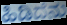
ಹಿಡಿದೆನು